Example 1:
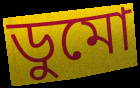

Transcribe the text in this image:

ডুমো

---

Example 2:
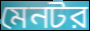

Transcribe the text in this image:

মেনটর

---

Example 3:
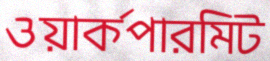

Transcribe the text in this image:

ওয়ার্কপারমিট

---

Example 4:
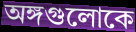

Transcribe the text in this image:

অঙ্গগুলোকে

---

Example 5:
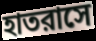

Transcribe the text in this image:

হাতরাসে